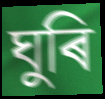
ঘুৰি